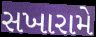
સખારામે